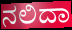
ನಲಿದಾ